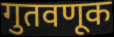
गुतवणूक